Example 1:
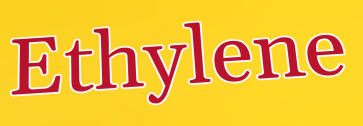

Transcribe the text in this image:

Ethylene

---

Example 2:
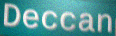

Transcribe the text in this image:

Deccan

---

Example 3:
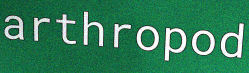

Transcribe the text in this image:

arthropod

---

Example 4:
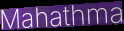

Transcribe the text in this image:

Mahathma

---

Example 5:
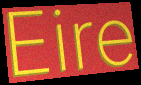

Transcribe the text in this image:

Eire